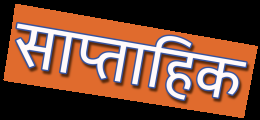
साप्ताहिक